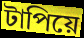
টাপিয়ে